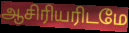
ஆசிரியரிடமே